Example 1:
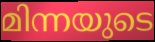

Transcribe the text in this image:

മിന്നയുടെ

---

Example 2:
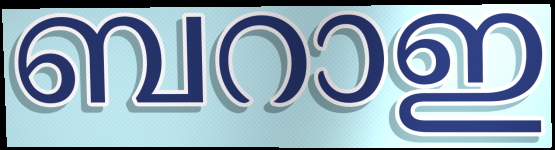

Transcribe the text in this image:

ബറാഇ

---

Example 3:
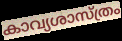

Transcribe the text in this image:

കാവ്യശാസ്ത്രം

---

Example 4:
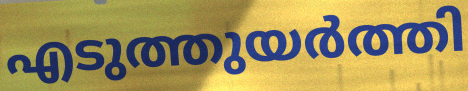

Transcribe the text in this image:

എടുത്തുയർത്തി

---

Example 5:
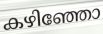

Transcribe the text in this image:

കഴിഞ്ഞോ